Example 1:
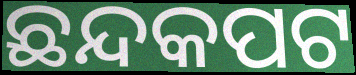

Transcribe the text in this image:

ଛନ୍ଦକପଟ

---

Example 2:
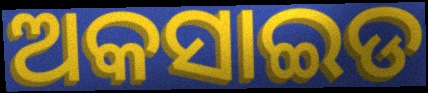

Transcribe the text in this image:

ଅକସାଇଡ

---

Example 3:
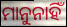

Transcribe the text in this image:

ମାନୁନାହିଁ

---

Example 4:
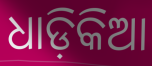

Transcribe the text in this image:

ଧାଡ଼ିକିଆ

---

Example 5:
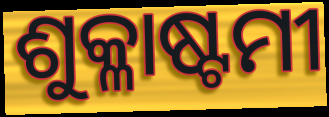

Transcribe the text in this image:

ଶୁକ୍ଳାଷ୍ଟମୀ